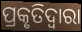
ପ୍ରକୃତିଦ୍ୱାରା